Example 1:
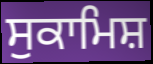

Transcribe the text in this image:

ਸੁਕਾਮਿਸ਼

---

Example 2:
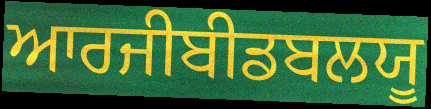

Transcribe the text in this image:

ਆਰਜੀਬੀਡਬਲਯੂ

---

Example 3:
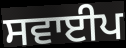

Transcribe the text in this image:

ਸਵਾਈਪ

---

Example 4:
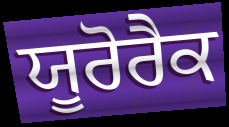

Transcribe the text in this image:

ਯੂਰੋਰੈਕ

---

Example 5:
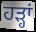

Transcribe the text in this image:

ਹੜ੍ਹਾਂ